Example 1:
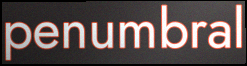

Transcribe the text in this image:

penumbral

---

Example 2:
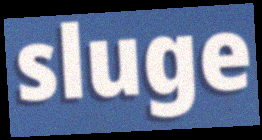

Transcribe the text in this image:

sluge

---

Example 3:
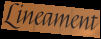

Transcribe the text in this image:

Lineament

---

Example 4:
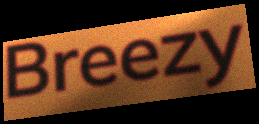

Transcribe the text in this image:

Breezy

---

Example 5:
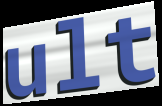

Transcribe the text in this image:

ult